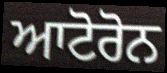
ਆਟੋਰੋਨ